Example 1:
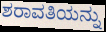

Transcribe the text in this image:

ಶರಾವತಿಯನ್ನು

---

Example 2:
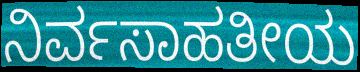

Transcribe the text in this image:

ನಿರ್ವಸಾಹತೀಯ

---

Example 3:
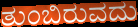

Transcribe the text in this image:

ತುಂಬಿರುವದು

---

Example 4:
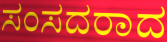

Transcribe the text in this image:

ಸಂಸದರಾದ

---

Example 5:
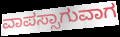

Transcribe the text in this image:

ವಾಪಸ್ಸಾಗುವಾಗ